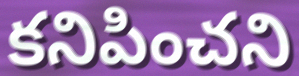
కనిపించని